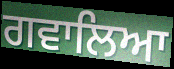
ਗਵਾਲਿਆ